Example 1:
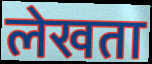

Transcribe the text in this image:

लेखता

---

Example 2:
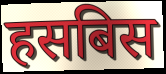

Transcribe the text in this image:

हसबिस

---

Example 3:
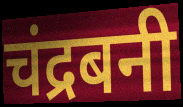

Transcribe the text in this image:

चंद्रबनी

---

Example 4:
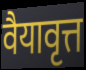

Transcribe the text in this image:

वैयावृत्त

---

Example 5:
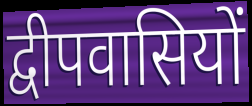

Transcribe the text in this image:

द्वीपवासियों